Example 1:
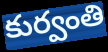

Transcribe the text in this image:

కుర్వంతి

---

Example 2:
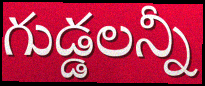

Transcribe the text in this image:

గుడ్డలన్నీ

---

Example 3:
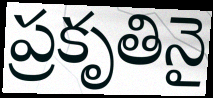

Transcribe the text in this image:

ప్రకృతినై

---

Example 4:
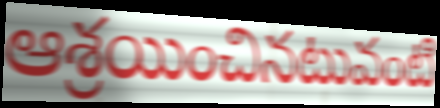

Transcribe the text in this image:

ఆశ్రయించినటువంటి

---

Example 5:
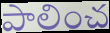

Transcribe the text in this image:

పాలించ